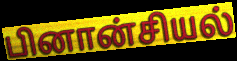
பினான்சியல்